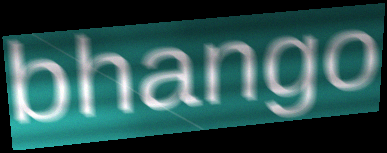
bhango